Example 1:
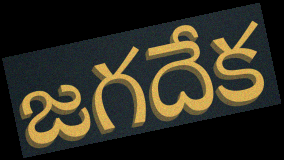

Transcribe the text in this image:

జగదేక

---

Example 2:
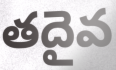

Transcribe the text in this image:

తదైవ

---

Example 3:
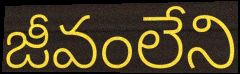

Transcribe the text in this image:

జీవంలేని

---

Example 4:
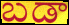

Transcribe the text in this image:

బడా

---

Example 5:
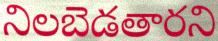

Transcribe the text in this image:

నిలబెడతారని